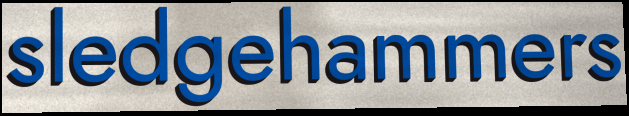
sledgehammers